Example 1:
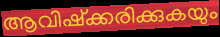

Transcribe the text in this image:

ആവിഷ്ക്കരിക്കുകയും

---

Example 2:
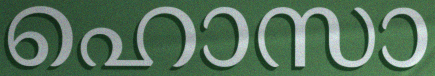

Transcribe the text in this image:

ഹൊസാ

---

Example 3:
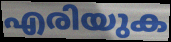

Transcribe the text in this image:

എരിയുക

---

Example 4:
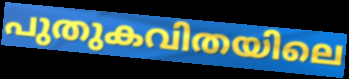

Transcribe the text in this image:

പുതുകവിതയിലെ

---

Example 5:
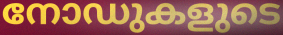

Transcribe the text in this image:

നോഡുകളുടെ